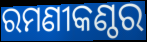
ରମଣୀକଣ୍ଠର